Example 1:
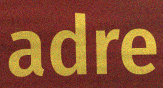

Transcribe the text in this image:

adre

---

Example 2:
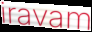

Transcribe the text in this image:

iravam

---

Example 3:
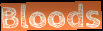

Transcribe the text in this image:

Bloods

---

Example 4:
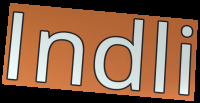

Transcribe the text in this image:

Indli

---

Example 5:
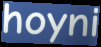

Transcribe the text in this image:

hoyni